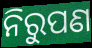
ନିରୁପଣ